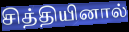
சித்தியினால்